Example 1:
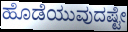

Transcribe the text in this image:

ಹೊಡೆಯುವುದಷ್ಟೇ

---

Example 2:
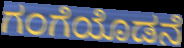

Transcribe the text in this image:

ಗಂಗೆಯೊಡನೆ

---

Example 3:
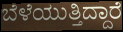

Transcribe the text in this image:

ಬೆಳೆಯುತ್ತಿದ್ದಾರೆ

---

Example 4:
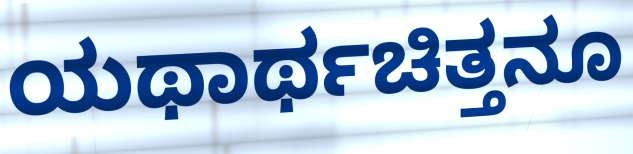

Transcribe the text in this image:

ಯಥಾರ್ಥಚಿತ್ತನೂ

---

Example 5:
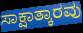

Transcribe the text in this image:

ಸಾಕ್ಷಾತ್ಕಾರವು